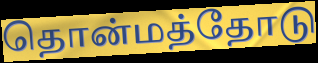
தொன்மத்தோடு